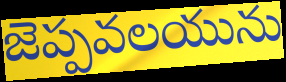
జెప్పవలయును